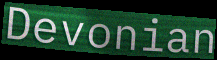
Devonian